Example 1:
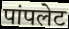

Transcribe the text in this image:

पांपलेट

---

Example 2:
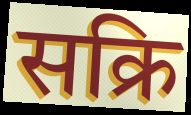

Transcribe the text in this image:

सक्रि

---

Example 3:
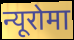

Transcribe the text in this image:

न्यूरोमा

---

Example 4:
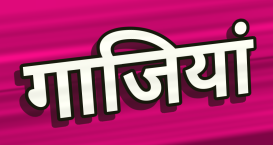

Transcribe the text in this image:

गाजियां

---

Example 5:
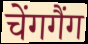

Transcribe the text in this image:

चेंगगैंग